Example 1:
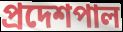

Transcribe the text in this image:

প্রদেশপাল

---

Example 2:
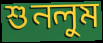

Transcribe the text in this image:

শুনলুম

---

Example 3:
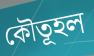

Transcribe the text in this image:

কৌতূহল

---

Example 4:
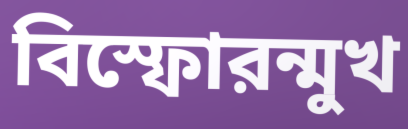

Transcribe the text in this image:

বিস্ফোরন্মুখ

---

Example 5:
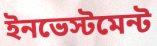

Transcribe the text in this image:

ইনভেস্টমেন্ট